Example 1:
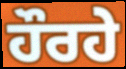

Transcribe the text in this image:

ਹੌਰਹੇ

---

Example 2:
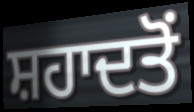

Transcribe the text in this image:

ਸ਼ਹਾਦਤੋਂ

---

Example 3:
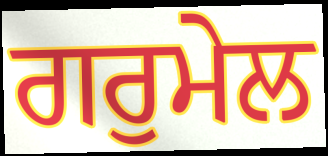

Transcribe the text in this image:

ਗਰੁਮੇਲ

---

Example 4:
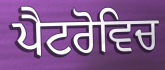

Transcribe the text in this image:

ਪੈਟਰੋਵਿਚ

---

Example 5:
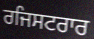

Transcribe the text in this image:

ਰਜਿਸਟਰਾਰ